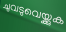
ചുവടുവെയ്ക്കുക